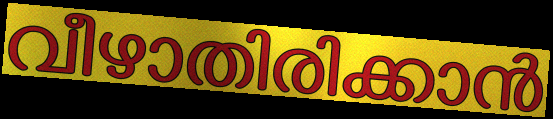
വീഴാതിരിക്കാൻ